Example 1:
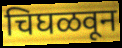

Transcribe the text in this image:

चिघळवून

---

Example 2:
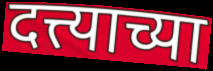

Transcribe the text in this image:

दत्त्याच्या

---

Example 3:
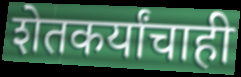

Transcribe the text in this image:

शेतकर्यांचाही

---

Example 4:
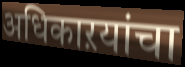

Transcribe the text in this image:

अधिकाऱयांचा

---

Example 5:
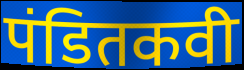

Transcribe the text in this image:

पंडितकवी